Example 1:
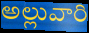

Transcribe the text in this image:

అల్లువారి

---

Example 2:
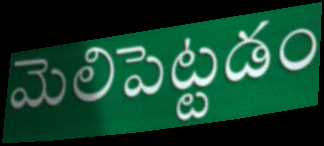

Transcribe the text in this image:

మెలిపెట్టడం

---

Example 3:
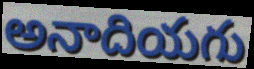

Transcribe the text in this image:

అనాదియగు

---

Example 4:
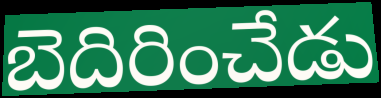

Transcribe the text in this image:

బెదిరించేడు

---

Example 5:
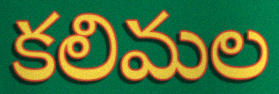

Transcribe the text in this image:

కలిమల